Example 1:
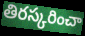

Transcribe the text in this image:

తిరస్కరించా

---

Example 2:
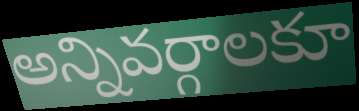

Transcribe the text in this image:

అన్నివర్గాలకూ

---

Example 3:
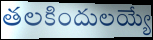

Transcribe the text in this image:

తలకిందులయ్యే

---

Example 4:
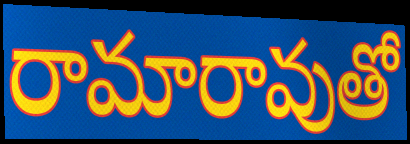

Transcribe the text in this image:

రామారావుతో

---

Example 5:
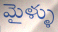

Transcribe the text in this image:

మైళ్ళు